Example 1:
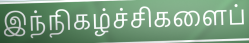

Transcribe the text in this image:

இந்நிகழ்ச்சிகளைப்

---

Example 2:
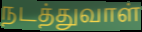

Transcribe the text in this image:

நடத்துவாள்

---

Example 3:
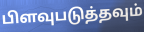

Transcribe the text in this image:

பிளவுபடுத்தவும்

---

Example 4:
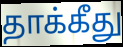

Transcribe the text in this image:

தாக்கீது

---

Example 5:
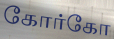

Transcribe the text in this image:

கோர்கோ